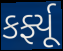
કર્ફ્યૂ